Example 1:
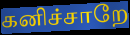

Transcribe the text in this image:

கனிச்சாறே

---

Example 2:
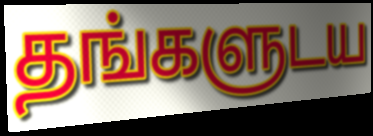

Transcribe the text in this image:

தங்களுடய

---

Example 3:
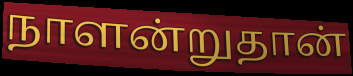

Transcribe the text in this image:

நாளன்றுதான்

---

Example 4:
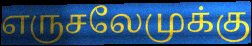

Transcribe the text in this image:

எருசலேமுக்கு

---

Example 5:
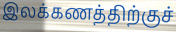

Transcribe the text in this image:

இலக்கணத்திற்குச்